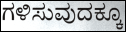
ಗಳಿಸುವುದಕ್ಕೂ